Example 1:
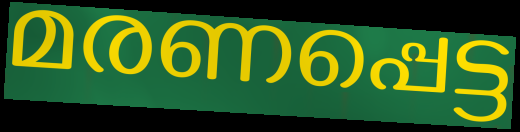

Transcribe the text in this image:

മരണപ്പെട്ട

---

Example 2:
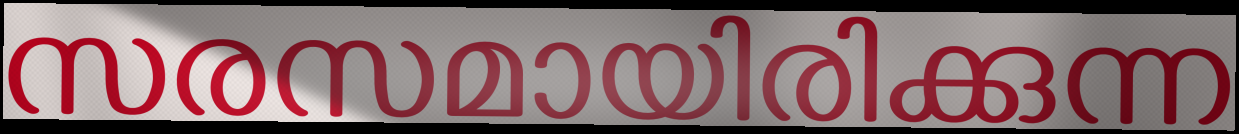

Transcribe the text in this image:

സരസമായിരിക്കുന്ന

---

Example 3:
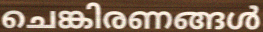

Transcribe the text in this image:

ചെങ്കിരണങ്ങൾ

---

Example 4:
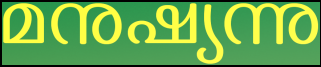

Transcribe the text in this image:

മനുഷ്യന്നു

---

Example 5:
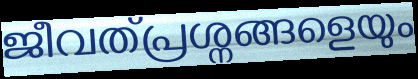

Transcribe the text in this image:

ജീവത്പ്രശ്നങ്ങളെയും